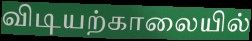
விடியற்காலையில்